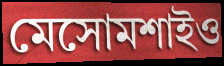
মেসোমশাইও